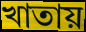
খাতায়